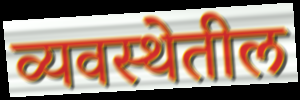
व्यवस्थेतील